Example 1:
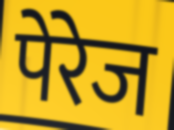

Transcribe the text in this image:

पेरेज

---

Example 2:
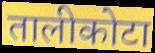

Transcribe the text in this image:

तालीकोटा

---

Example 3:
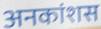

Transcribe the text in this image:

अनकांशस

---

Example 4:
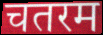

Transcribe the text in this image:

चतरम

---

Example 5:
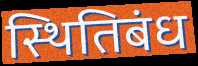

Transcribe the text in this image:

स्थितिबंध